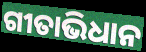
ଗୀତାଭିଧାନ